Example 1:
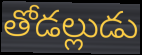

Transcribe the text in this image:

తోడల్లుడు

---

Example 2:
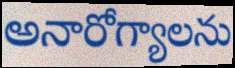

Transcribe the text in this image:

అనారోగ్యాలను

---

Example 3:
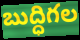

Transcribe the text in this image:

బుద్ధిగల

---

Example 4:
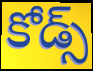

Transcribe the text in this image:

కోడ్స్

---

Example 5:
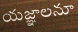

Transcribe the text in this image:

యజ్ఞాలనూ